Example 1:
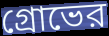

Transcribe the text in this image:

গ্রোভের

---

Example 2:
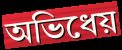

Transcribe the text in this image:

অভিধেয়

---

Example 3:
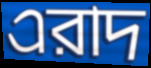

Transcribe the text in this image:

এরাদ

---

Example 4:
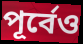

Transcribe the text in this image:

পূর্বেও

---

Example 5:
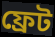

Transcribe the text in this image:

ফ্রেট